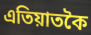
এতিয়াতকৈ